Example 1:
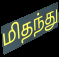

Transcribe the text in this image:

மிதந்து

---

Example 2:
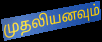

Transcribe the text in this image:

முதலியனவும்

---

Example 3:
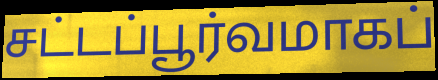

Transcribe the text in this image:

சட்டப்பூர்வமாகப்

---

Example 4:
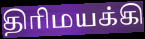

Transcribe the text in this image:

திரிமயக்கி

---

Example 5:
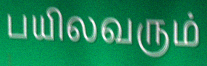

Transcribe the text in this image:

பயிலவரும்